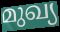
മുഖ്യ